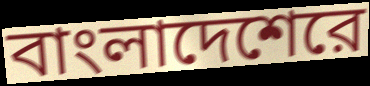
বাংলাদেশেরে